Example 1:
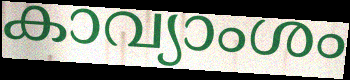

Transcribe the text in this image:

കാവ്യാംശം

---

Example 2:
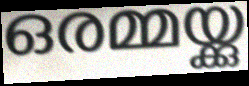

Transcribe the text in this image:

ഒരമ്മയ്ക്കു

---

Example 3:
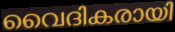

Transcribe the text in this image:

വൈദികരായി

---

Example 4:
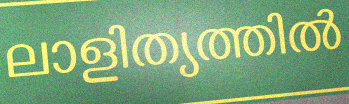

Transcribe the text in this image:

ലാളിത്യത്തിൽ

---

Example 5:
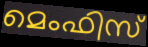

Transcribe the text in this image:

മെംഫിസ്